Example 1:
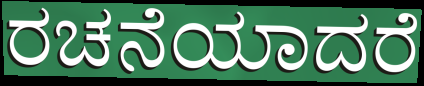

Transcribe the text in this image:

ರಚನೆಯಾದರೆ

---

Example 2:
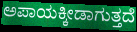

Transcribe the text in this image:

ಅಪಾಯಕ್ಕೀಡಾಗುತ್ತದೆ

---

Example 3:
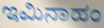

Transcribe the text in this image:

ಇಮಿನಾಹಂ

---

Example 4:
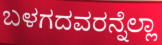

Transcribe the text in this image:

ಬಳಗದವರನ್ನೆಲ್ಲಾ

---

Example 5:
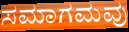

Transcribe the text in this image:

ಸಮಾಗಮವು